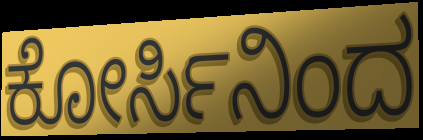
ಕೋರ್ಸಿನಿಂದ